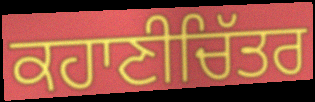
ਕਹਾਣੀਚਿੱਤਰ